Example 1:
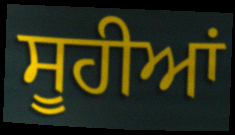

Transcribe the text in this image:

ਸੂਹੀਆਂ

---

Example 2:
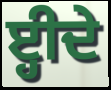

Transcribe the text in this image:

ੲ੍ਹੀਦੇ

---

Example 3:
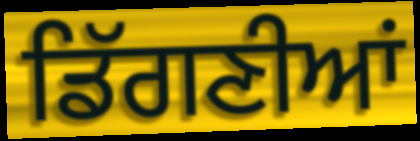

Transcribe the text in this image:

ਡਿੱਗਣੀਆਂ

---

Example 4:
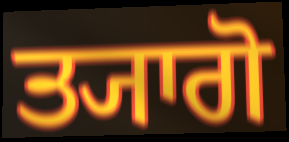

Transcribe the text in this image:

ਤ੍ਯਾਗੋ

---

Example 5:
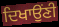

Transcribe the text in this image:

ਦਿਖਾਉਂਣੀ